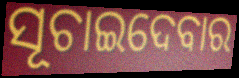
ସୂଚାଇଦେବାର